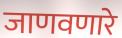
जाणवणारे